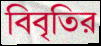
বিবৃতির